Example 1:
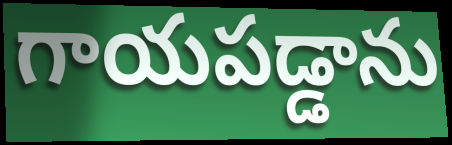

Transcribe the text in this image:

గాయపడ్డాను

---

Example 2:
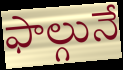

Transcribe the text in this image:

ఫాల్గునే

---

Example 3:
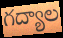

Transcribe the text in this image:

గద్యాల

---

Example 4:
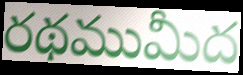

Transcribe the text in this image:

రథముమీద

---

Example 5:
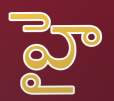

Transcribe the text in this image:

హై